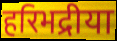
हरिभद्रीया